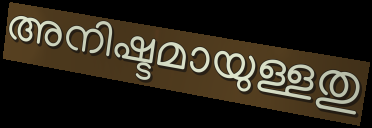
അനിഷ്ടമായുള്ളതു